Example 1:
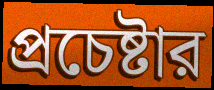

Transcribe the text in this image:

প্রচেষ্টার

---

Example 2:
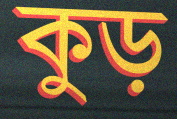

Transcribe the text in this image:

কুড়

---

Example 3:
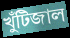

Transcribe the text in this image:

খুঁটিজাল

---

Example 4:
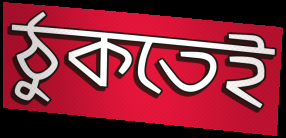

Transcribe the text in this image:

ঠুকতেই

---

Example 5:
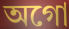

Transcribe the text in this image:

অগো